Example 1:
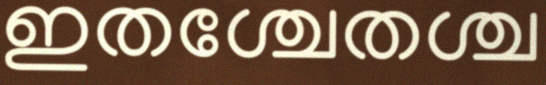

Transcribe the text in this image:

ഇതശ്ചേതശ്ച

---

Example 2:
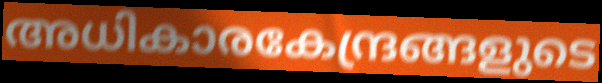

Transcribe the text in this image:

അധികാരകേന്ദ്രങ്ങളുടെ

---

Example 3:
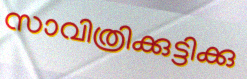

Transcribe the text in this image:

സാവിത്രിക്കുട്ടിക്കു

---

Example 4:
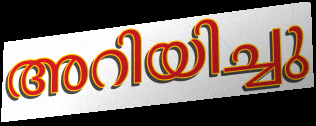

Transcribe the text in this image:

അറിയിച്ചു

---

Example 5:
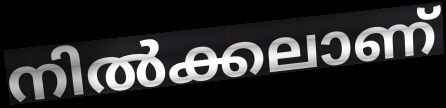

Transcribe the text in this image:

നിൽക്കലാണ്